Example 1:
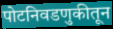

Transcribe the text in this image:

पोटनिवडणुकीतून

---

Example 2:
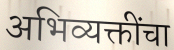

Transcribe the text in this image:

अभिव्यक्तींचा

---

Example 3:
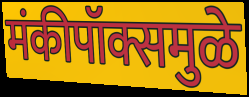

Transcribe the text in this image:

मंकीपॉक्समुळे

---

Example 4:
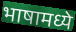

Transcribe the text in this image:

भाषामध्ये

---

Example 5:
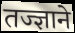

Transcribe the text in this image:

तज्ज्ञाने